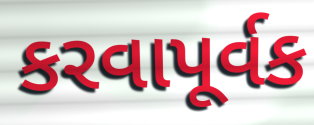
કરવાપૂર્વક